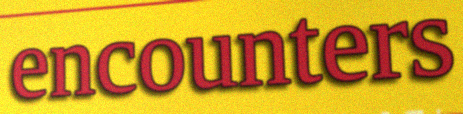
encounters